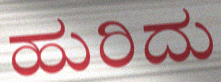
ಹುರಿದು